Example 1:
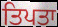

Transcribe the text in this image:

ਤਿਪਤਾ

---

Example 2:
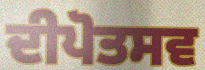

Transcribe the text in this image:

ਦੀਪੋਤਸਵ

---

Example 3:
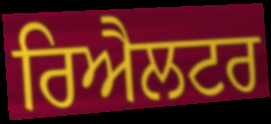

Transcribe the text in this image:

ਰਿਐਲਟਰ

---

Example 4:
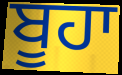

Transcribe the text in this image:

ਬੂਹਾ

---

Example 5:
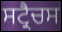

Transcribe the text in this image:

ਸਟ੍ਰੈਚਸ